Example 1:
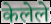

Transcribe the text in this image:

केलेले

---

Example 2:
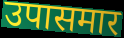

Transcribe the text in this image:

उपासमार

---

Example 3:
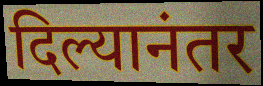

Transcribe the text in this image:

दिल्यानंतर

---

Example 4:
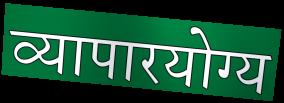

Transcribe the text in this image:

व्यापारयोग्य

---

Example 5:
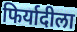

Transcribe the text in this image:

फिर्यादीला